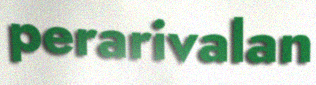
perarivalan